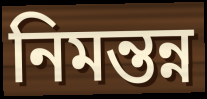
নিমন্তন্ন